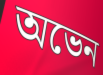
অভেন